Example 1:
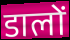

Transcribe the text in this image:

डालों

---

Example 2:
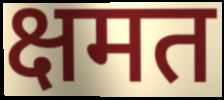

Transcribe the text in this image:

क्षमत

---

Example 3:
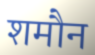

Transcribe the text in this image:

शमौन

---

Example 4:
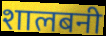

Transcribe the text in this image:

शालबनी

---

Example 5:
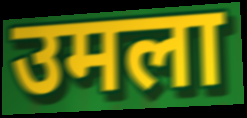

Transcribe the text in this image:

उमला